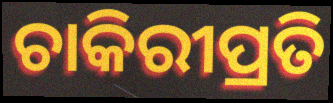
ଚାକିରୀପ୍ରତି